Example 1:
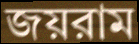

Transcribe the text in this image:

জয়রাম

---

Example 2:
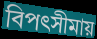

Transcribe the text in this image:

বিপৎসীমায়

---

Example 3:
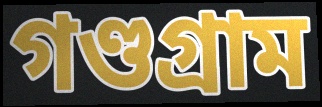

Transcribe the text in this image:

গণ্ডগ্রাম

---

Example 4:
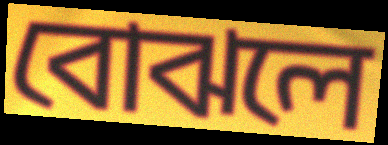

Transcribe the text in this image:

বোঝলে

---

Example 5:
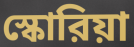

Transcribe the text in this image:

স্কোরিয়া